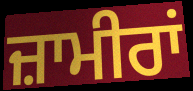
ਜ਼ਾਮੀਰਾਂ